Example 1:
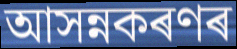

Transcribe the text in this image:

আসন্নকৰণৰ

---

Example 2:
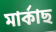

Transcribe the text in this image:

মাৰ্কাছ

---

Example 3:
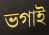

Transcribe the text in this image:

ভগাই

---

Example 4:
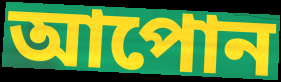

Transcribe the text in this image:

আপোন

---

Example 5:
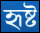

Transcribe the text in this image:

হৃষ্ট